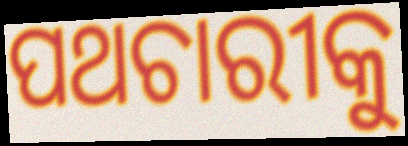
ପଥଚାରୀକୁ